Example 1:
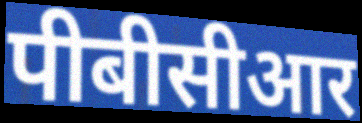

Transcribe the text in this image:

पीबीसीआर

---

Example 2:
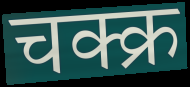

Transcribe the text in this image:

चक्क्र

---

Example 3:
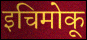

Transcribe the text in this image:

इचिमोकू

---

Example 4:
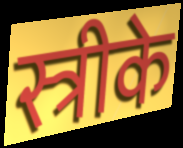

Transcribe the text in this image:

स्त्रीके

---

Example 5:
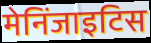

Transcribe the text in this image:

मेनिंजाइटिस